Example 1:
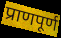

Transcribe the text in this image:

प्राणपूर्ण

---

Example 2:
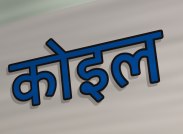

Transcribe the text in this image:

कोइल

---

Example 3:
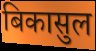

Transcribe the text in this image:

बिकासुल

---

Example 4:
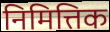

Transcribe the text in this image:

निमित्तिक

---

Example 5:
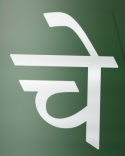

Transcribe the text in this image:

चे